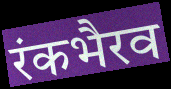
रंकभैरव